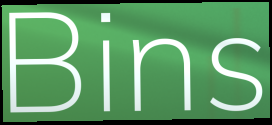
Bins